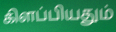
கிளப்பியதும்